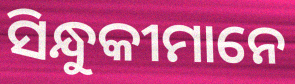
ସିନ୍ଧୁକୀମାନେ